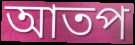
আতপ